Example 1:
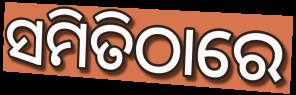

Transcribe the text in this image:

ସମିତିଠାରେ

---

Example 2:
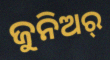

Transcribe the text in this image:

ଜୁନିଅର୍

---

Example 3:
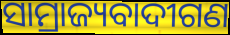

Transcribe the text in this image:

ସାମ୍ରାଜ୍ୟବାଦୀଗଣ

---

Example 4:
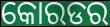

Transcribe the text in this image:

କୋରଡର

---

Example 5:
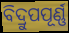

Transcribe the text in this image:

ବିଦ୍ରୁପପୂର୍ଣ୍ଣ